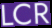
LCR